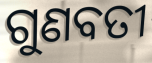
ଗୁଣବତୀ